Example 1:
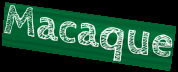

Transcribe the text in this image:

Macaque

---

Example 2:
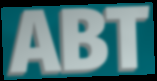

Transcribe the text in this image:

ABT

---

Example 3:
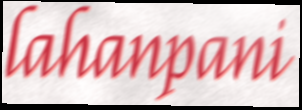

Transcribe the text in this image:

lahanpani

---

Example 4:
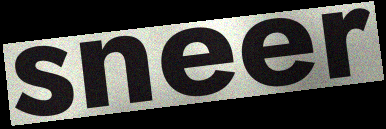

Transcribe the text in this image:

sneer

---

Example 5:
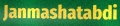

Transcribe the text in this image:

Janmashatabdi